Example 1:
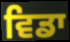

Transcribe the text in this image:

ਵਿਡਾ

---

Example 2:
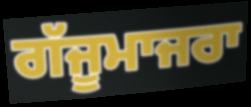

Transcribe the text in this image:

ਗੱਜੂਮਾਜਰਾ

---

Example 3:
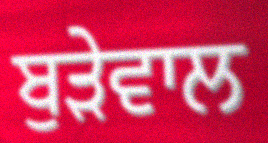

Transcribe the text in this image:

ਬੁੜੇਵਾਲ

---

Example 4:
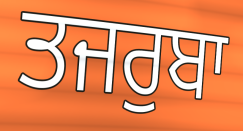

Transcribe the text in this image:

ਤਜਰੁਬਾ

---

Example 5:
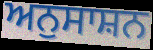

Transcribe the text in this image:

ਅਨੁਸਾਸ਼ਨ